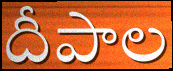
దీపాల